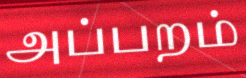
அப்பறம்